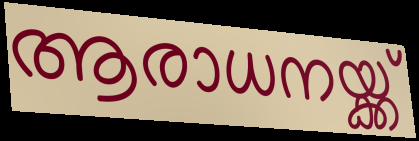
ആരാധനയ്ക്ക്